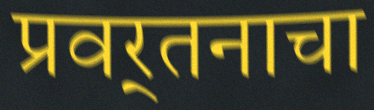
प्रवर्तनाचा